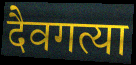
दैवगत्या